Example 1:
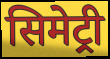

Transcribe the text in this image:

सिमेट्री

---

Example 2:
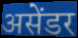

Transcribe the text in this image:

असेंडर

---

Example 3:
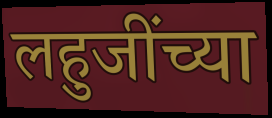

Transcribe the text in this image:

लहुजींच्या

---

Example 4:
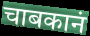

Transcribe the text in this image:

चाबकानं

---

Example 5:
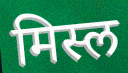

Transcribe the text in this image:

मिस्ल